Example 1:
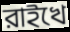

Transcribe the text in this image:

রাইখে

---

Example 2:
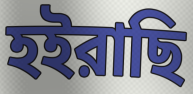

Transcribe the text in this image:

হইরাছি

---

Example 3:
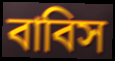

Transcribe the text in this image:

বাবিস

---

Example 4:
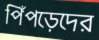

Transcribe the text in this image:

পিঁপড়েদের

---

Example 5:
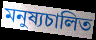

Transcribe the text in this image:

মনুষ্যচালিত